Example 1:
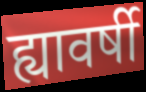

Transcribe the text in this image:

ह्यावर्षी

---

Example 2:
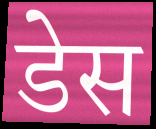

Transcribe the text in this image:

डेस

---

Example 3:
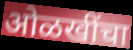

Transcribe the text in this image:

ओळखींचा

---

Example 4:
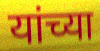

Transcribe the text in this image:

यांच्‍या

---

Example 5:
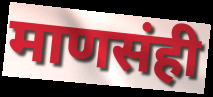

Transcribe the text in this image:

माणसंही